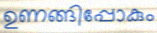
ഉണങ്ങിപ്പോകും